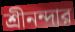
শ্রীনন্দার